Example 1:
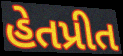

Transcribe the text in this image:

હેતપ્રીત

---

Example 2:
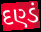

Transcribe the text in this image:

દણ્ડં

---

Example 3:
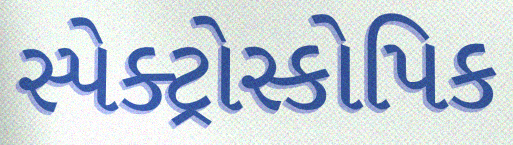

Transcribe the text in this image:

સ્પેક્ટ્રોસ્કોપિક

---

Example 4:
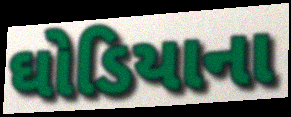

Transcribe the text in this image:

ઘોડિયાના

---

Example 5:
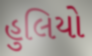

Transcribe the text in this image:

હુલિયો